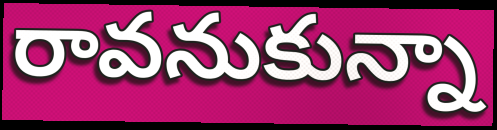
రావనుకున్నా